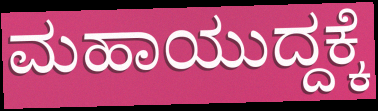
ಮಹಾಯುದ್ದಕ್ಕೆ